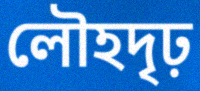
লৌহদৃঢ়